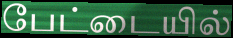
பேட்டையில்